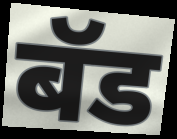
बॅड